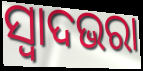
ସ୍ଵାଦଭରା